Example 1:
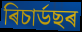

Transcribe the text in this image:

ৰিচাৰ্ডছৰ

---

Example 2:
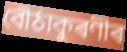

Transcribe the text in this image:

বৌঠাকুৰণীৰ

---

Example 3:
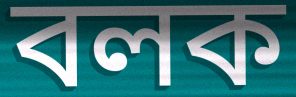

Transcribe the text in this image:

বলক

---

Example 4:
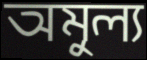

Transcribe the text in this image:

অমুল্য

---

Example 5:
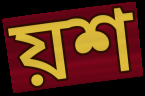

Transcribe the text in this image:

য়শ